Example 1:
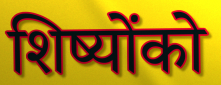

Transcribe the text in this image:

शिष्योंको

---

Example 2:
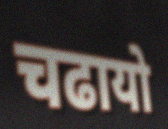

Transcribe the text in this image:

चढायो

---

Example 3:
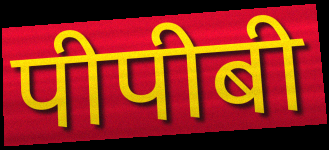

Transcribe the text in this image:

पीपीबी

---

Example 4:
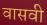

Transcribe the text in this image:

वासवी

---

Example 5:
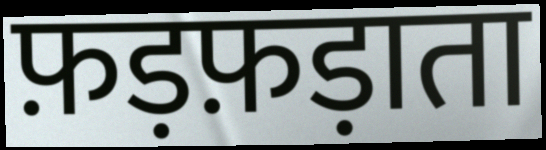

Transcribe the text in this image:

फ़ड़फ़ड़ाता